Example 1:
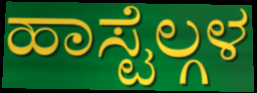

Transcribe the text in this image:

ಹಾಸ್ಟೆಲ್ಗಳ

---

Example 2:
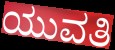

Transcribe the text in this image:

ಯುವತಿ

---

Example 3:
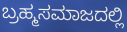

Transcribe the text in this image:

ಬ್ರಹ್ಮಸಮಾಜದಲ್ಲಿ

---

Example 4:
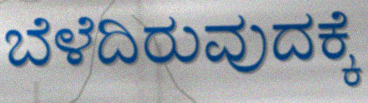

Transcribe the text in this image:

ಬೆಳೆದಿರುವುದಕ್ಕೆ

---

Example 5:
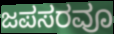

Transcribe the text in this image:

ಜಪಸರವೂ